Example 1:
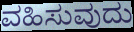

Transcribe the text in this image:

ವಹಿಸುವುದು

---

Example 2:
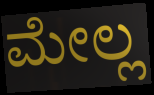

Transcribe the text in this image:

ಮೇಲ್ಲ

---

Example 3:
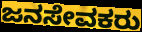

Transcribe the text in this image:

ಜನಸೇವಕರು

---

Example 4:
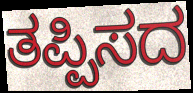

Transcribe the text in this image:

ತಪ್ಪಿಸದ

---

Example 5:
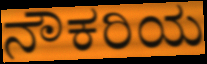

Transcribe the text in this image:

ನೌಕರಿಯ